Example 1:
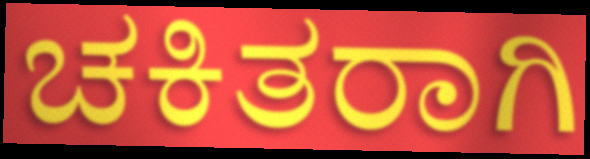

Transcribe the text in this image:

ಚಕಿತರಾಗಿ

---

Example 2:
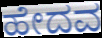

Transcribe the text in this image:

ಹೇದವ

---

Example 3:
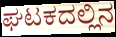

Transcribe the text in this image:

ಘಟಕದಲ್ಲಿನ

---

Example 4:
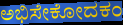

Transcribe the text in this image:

ಅಭಿಸೇಕೋದಕಂ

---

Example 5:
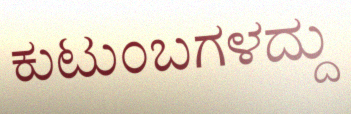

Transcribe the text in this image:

ಕುಟುಂಬಗಳದ್ದು